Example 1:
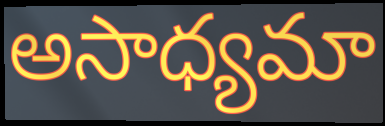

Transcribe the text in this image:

అసాధ్యమా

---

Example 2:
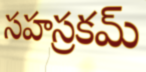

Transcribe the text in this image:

సహస్రకమ్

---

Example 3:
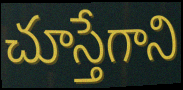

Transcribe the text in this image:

చూస్తేగాని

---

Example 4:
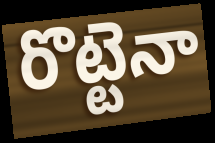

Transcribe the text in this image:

రొట్టెనా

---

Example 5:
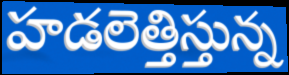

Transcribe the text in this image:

హడలెత్తిస్తున్న